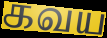
கவய